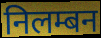
निलम्‍बन